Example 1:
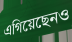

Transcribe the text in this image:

এগিয়েছেনও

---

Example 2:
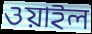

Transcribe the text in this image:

ওয়াইল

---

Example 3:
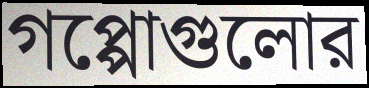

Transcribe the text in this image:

গপ্পোগুলোর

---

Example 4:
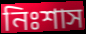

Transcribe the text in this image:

নিঃশাস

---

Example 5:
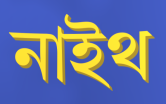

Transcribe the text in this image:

নাইথ